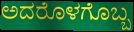
ಅದರೊಳಗೊಬ್ಬ